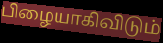
பிழையாகிவிடும்